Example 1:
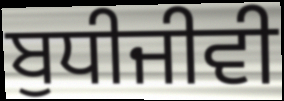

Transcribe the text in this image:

ਬੁਧੀਜੀਵੀ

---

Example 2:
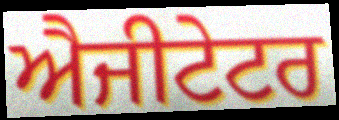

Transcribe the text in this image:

ਐਜੀਟੇਟਰ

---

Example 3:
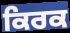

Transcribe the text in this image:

ਕਿਰਕ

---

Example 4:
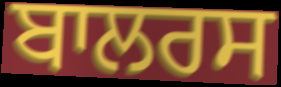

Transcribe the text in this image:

ਬਾਲਰਸ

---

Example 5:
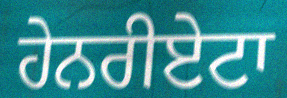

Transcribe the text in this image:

ਹੇਨਰੀਏਟਾ